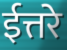
ईत्तरे